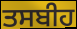
ਤਸਬੀਹ